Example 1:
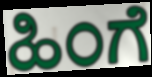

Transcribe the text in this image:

ಹಿಂಗೆ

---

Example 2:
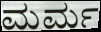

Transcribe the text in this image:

ಮರ್ಮ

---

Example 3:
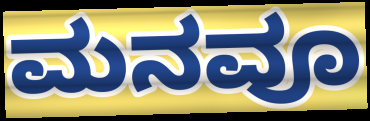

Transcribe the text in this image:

ಮನವೂ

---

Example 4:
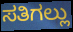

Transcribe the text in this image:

ಸತಿಗಲ್ಲು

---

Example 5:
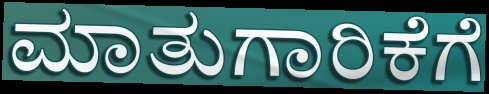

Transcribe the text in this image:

ಮಾತುಗಾರಿಕೆಗೆ